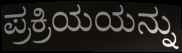
ಪ್ರಕ್ರಿಯಯನ್ನು